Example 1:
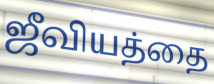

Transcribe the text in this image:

ஜீவியத்தை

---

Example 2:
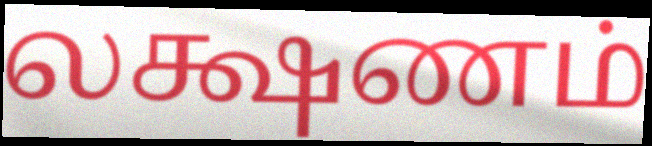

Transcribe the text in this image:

லக்ஷணம்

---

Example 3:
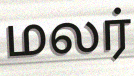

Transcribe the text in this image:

மலர்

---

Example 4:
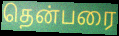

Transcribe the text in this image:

தென்பரை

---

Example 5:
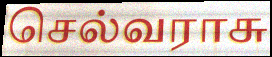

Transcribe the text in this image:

செல்வராசு